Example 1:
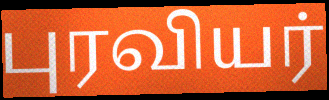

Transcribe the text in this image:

புரவியர்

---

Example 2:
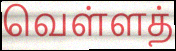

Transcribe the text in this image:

வெள்ளத்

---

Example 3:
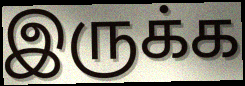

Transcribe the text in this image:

இருக்க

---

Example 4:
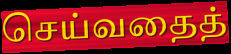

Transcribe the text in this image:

செய்வதைத்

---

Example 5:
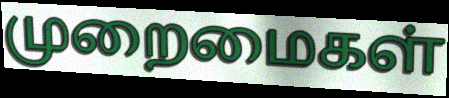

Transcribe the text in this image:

முறைமைகள்